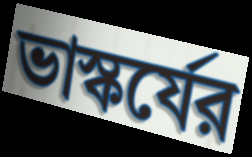
ভাস্কর্যের